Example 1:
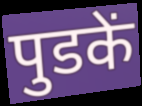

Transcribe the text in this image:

पुडकें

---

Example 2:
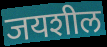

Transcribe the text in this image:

जयशील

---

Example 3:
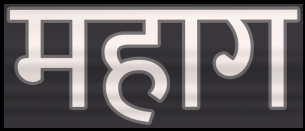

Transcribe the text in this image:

महाग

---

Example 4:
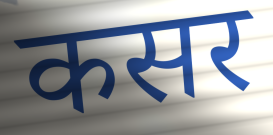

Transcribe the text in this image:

कसर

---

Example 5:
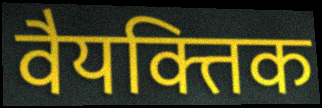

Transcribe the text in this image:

वैयक्तिक